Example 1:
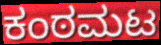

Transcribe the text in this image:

ಕಂಠಮಟ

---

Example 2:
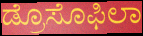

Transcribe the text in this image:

ಡ್ರೊಸೊಫಿಲಾ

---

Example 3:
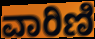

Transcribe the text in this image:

ವಾರಿಣಿ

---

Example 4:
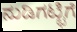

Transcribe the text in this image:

ನುಡಿಗಟ್ಟಿಗೆ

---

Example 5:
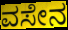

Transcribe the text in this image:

ವಸೇನ